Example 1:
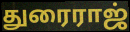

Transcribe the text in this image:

துரைராஜ்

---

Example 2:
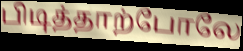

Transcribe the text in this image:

பிடித்தாற்போலே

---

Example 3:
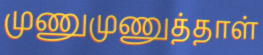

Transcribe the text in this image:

முணுமுணுத்தாள்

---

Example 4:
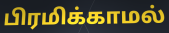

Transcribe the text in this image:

பிரமிக்காமல்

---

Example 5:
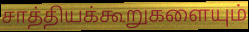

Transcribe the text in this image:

சாத்தியக்கூறுகளையும்